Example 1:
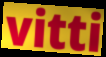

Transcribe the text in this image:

vitti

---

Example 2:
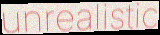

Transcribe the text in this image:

unrealistic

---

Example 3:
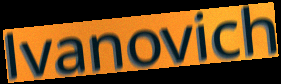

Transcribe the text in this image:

Ivanovich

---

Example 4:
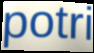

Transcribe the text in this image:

potri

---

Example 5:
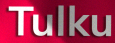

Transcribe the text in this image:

Tulku